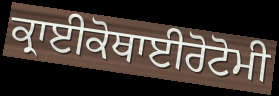
ਕ੍ਰਾਈਕੋਥਾਈਰੋਟੋਮੀ